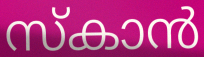
സ്കാൻ